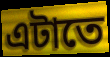
এটাতে